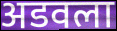
अडवला